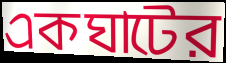
একঘাটের